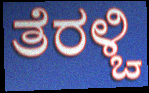
ತೆರಳ್ಚಿ